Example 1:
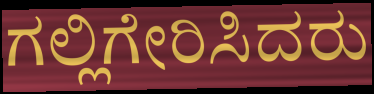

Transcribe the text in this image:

ಗಲ್ಲಿಗೇರಿಸಿದರು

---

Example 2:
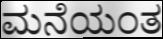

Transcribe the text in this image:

ಮನೆಯಂತ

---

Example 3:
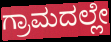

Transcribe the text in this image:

ಗ್ರಾಮದಲ್ಲೇ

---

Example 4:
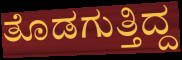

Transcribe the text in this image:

ತೊಡಗುತ್ತಿದ್ದ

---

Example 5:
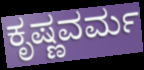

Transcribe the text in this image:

ಕೃಷ್ಣವರ್ಮ